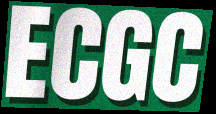
ECGC